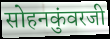
सोहनकुंवरजी